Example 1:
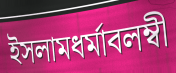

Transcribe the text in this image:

ইসলামধর্মাবলম্বী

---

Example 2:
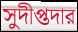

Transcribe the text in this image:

সুদীপ্তদার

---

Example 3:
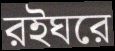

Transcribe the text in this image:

রইঘরে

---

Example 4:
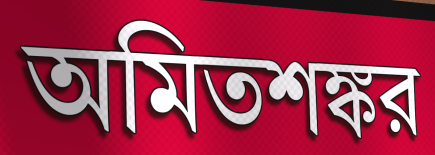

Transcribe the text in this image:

অমিতশঙ্কর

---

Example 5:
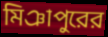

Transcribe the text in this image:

মিঞাপুরের